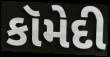
કૉમેદી